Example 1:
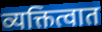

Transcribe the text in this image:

व्यक्तित्वात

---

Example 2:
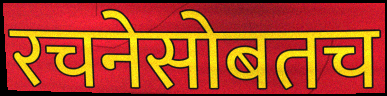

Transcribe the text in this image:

रचनेसोबतच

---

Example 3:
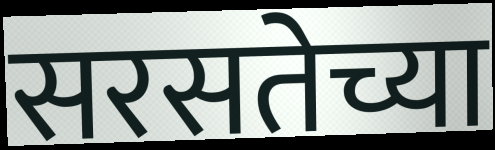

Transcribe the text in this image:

सरसतेच्या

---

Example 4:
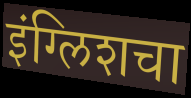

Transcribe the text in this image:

इंग्लिशचा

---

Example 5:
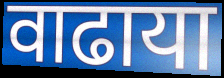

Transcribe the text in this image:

वाढाया